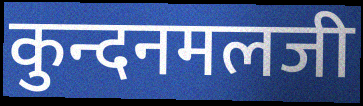
कुन्दनमलजी